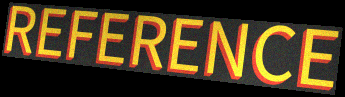
REFERENCE